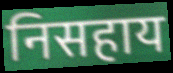
निसहाय